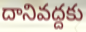
దానివద్దకు